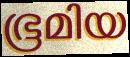
ഭൂമിയ